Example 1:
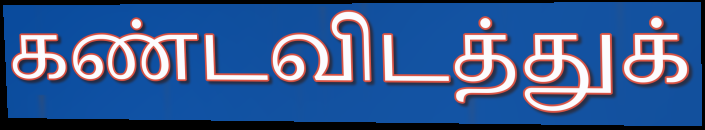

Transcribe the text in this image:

கண்டவிடத்துக்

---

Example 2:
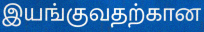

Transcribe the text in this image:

இயங்குவதற்கான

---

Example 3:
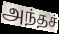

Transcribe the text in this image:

அந்தச்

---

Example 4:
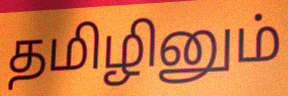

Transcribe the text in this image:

தமிழினும்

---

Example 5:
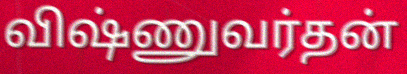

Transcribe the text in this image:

விஷ்ணுவர்தன்